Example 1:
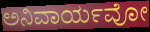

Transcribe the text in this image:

ಅನಿವಾರ್ಯವೋ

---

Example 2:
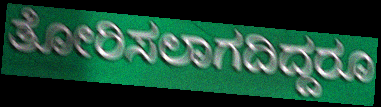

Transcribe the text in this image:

ತೋರಿಸಲಾಗದಿದ್ದರೂ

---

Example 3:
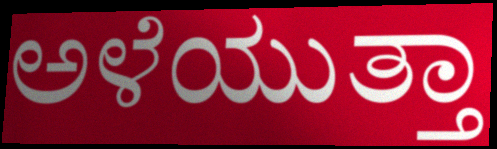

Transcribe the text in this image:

ಅಳೆಯುತ್ತಾ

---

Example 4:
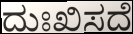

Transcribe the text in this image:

ದುಃಖಿಸದೆ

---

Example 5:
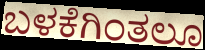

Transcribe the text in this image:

ಬಳಕೆಗಿಂತಲೂ